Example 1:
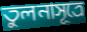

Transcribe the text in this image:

তুলনাসূত্রে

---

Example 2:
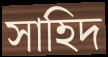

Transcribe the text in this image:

সাহিদ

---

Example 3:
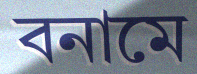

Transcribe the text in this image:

বনামে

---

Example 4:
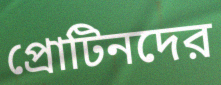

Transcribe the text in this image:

প্রোটিনদের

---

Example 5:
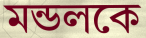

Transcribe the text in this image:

মন্ডলকে